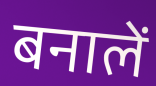
बनालें